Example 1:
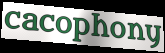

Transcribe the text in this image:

cacophony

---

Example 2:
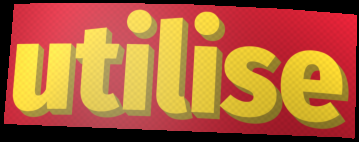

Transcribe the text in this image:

utilise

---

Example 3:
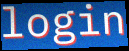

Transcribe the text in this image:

login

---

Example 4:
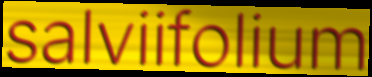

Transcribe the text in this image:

salviifolium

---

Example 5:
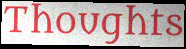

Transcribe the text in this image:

Thoughts